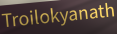
Troilokyanath